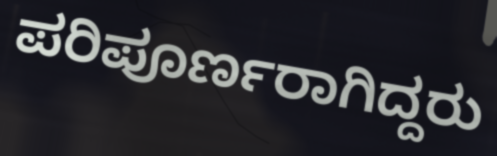
ಪರಿಪೂರ್ಣರಾಗಿದ್ದರು